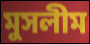
মুসলীম